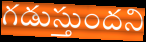
గడుస్తుందని